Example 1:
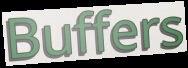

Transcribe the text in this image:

Buffers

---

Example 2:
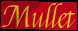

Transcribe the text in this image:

Mullet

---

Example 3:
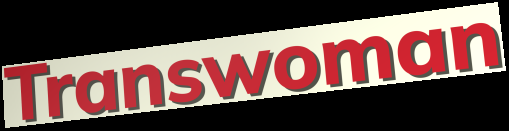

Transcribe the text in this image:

Transwoman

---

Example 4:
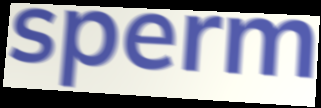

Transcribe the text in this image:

sperm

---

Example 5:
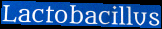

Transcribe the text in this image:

Lactobacillus